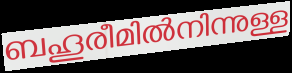
ബഹൂരീമിൽനിന്നുള്ള